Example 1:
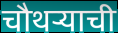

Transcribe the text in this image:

चौथऱ्याची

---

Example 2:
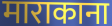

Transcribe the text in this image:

माराकाना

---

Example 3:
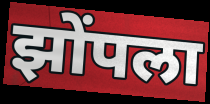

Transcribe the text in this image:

झोंपला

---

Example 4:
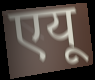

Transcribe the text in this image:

एयू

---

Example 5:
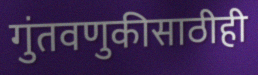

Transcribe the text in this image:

गुंतवणुकीसाठीही